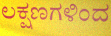
ಲಕ್ಷಣಗಳಿಂದ